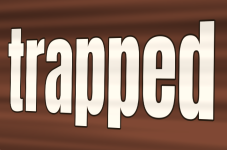
trapped